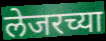
लेजरच्या